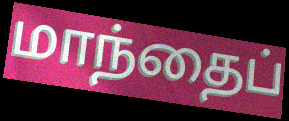
மாந்தைப்